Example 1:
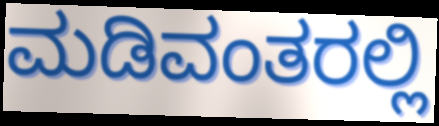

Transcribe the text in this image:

ಮಡಿವಂತರಲ್ಲಿ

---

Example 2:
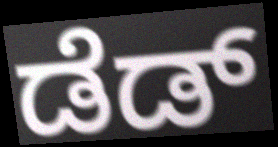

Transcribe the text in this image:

ಡೆಡ್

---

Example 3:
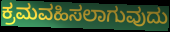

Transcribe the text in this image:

ಕ್ರಮವಹಿಸಲಾಗುವುದು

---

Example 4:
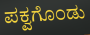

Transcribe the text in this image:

ಪಕ್ವಗೊಂಡು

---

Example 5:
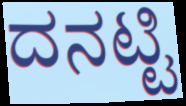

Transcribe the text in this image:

ದನಟ್ಟಿ